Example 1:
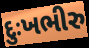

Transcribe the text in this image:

દુઃખભીરુ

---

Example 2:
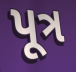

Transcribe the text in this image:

પૂત્ર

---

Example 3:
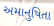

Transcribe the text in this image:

અમાનુષિતા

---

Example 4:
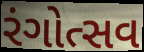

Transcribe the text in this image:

રંગોત્સવ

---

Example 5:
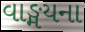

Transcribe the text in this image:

વાઙ્મયના